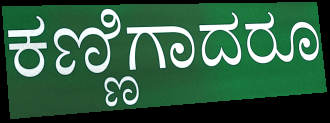
ಕಣ್ಣಿಗಾದರೂ